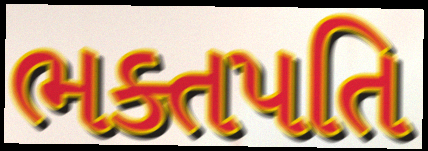
ભક્તપતિ